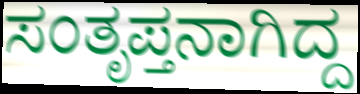
ಸಂತೃಪ್ತನಾಗಿದ್ದ